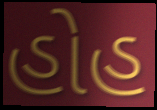
હોહ